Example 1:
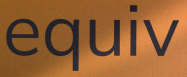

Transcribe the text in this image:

equiv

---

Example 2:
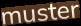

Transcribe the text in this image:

muster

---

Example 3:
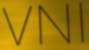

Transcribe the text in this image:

VNI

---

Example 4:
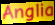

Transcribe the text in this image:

Anglia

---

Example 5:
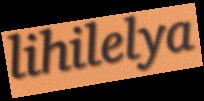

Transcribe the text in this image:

lihilelya